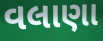
વલાણા